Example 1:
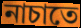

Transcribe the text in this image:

নাচাতে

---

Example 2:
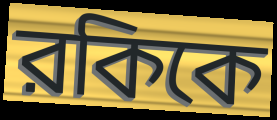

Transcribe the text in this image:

রকিকে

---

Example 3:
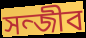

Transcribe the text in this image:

সন্জীব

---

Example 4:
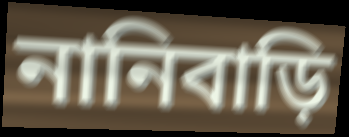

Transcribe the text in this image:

নানিবাড়ি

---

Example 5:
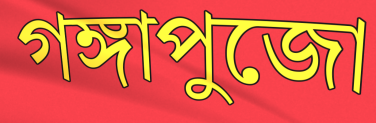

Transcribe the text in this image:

গঙ্গাপুজো